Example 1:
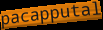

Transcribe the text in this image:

pacapputal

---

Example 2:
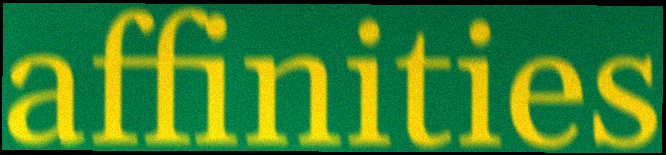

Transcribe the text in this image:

affinities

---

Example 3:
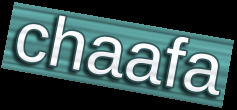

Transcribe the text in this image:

chaafa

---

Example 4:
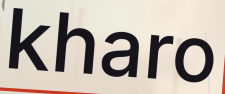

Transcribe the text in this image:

kharo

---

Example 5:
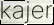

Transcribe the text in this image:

kajer